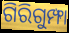
ଗିରିଗୁମ୍ଫା